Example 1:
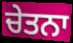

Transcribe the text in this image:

ਚੇਤਨਾ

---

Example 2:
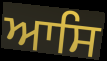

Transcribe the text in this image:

ਆਸਿ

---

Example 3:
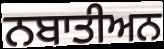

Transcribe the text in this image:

ਨਬਾਤੀਅਨ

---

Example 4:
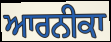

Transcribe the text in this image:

ਆਰਨੀਕਾ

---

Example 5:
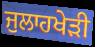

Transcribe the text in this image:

ਜੁਲਾਹਖੇੜੀ